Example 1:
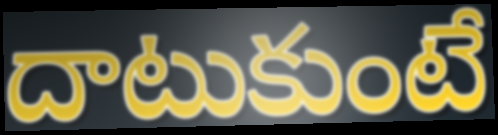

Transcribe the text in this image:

దాటుకుంటే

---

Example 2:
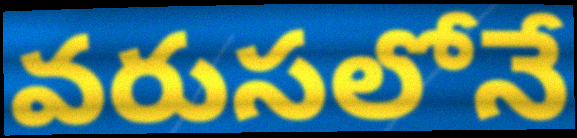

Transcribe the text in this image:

వరుసలోనే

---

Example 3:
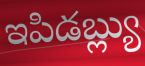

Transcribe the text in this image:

ఇపిడబ్ల్యు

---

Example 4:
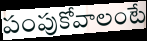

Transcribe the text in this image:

పంపుకోవాలంటే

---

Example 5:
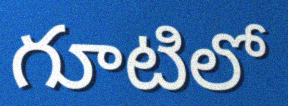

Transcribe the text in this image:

గూటిలో